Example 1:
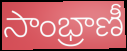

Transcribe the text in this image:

సాంభ్రాణీ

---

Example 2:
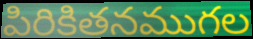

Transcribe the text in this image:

పిరికితనముగల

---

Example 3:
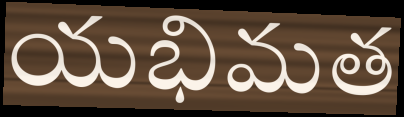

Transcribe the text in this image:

యభిమత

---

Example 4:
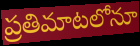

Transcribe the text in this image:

ప్రతిమాటలోనూ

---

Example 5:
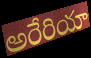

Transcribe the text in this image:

అరేరియా